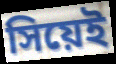
সিয়েই